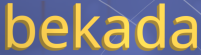
bekada